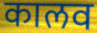
कालव